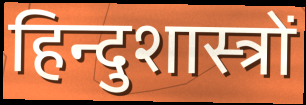
हिन्दुशास्त्रों